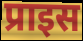
प्राइस